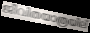
ജീവിതയാത്രയില്